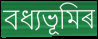
বধ্যভূমিৰ